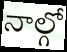
నాల్గో